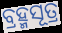
ବ୍ରହ୍ମସୂତ୍ର